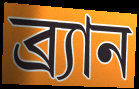
ব্র্যান